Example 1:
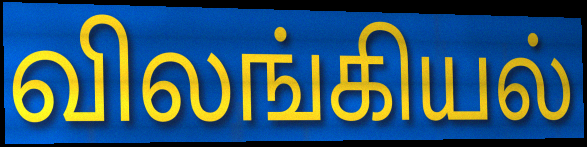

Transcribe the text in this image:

விலங்கியல்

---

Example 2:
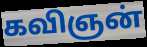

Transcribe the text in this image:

கவிஞன்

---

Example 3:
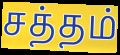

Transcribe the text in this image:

சத்தம்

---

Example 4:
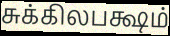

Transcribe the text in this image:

சுக்கிலபக்ஷம்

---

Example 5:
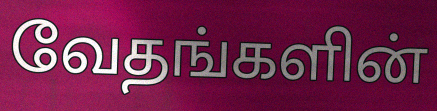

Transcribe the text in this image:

வேதங்களின்